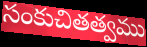
సంకుచితత్వము